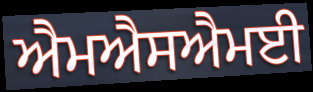
ਐਮਐਸਐਮਈ